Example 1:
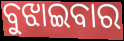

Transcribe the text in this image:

ବୁଝାଇବାର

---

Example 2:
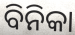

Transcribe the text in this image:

ବିନିକା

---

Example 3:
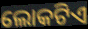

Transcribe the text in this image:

ଲୋକଟିଏ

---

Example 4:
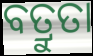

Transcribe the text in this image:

ବତ୍ରୁତା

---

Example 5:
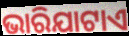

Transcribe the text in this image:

ଭାରିଯାଟାଏ